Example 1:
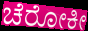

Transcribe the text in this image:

ಚೆರೋಕೀ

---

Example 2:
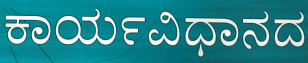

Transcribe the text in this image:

ಕಾರ್ಯವಿಧಾನದ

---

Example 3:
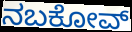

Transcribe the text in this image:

ನಬಕೋವ್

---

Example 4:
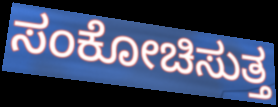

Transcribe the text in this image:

ಸಂಕೋಚಿಸುತ್ತ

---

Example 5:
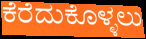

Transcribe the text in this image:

ಕೆರೆದುಕೊಳ್ಳಲು